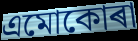
এমোকোৰা